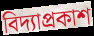
বিদ্যাপ্রকাশ